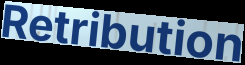
Retribution